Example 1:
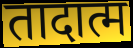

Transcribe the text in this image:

तादात्म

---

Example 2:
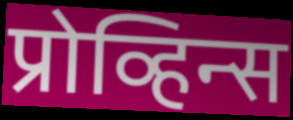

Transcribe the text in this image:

प्रोव्हिन्स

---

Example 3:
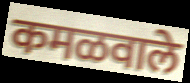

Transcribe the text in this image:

कमळवाले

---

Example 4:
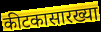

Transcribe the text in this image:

कीटकासारख्या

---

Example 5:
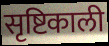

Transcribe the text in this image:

सृष्टिकाली